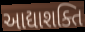
આદ્યાશક્તિ